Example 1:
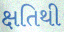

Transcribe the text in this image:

ક્ષતિથી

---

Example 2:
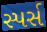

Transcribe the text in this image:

સ્પર્સ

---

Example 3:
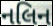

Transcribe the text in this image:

નલિન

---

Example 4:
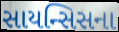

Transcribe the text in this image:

સાયન્સિસના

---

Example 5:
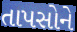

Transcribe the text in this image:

તાપસોને